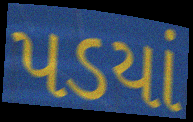
પડયાં